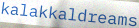
kalakkaldreams